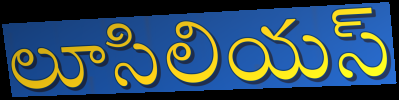
లూసిలియస్